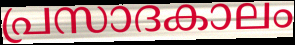
പ്രസാദകാലം